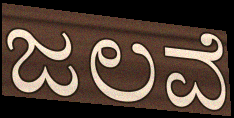
ಜಲವೆ